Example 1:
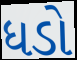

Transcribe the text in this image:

ધડો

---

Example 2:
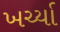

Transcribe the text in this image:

ખર્ચ્યા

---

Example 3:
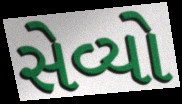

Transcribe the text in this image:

સેવ્યો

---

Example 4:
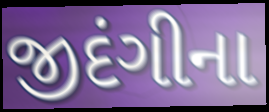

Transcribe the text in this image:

જીદંગીના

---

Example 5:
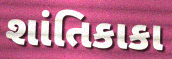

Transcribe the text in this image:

શાંતિકાકા